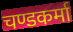
चण्डकर्मा